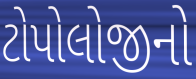
ટોપોલોજીનો